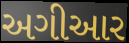
અગીઆર